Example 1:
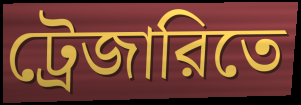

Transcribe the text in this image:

ট্রেজারিতে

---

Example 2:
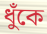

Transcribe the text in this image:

ধুঁকে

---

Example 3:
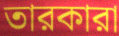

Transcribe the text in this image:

তারকারা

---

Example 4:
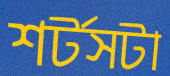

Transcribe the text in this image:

শর্টসটা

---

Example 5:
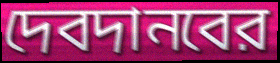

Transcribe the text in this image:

দেবদানবের